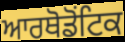
ਆਰਥੋਡੋਂਟਿਕ